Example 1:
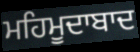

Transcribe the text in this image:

ਮਹਿਮੂਦਾਬਾਦ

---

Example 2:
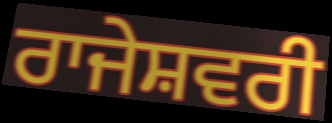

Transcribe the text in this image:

ਰਾਜੇਸ਼ਵਰੀ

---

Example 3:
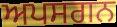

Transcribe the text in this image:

ਅਪਸਗਨ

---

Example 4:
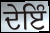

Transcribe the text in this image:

ਦੇਇੰ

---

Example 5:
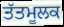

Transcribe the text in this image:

ਤੱਤਮੂਲਕ